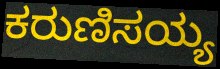
ಕರುಣಿಸಯ್ಯ